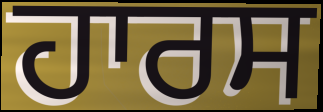
ਹਾਰਸ